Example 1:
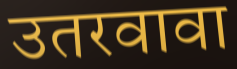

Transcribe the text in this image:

उतरवावा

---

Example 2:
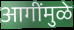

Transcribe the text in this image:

आगींमुळे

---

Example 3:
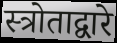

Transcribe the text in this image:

स्त्रोताद्वारे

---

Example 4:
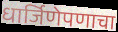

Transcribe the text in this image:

धार्जिणेपणाचा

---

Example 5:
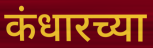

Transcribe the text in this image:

कंधारच्या